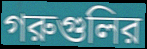
গরুগুলির